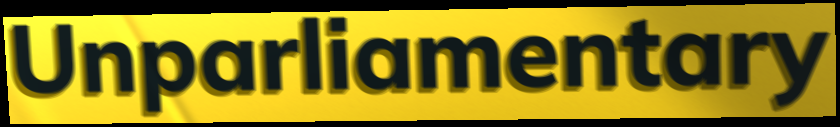
Unparliamentary